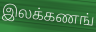
இலக்கணங்